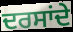
ਦਰਸਾਂਦੇ